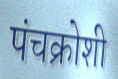
पंचक्रोशी